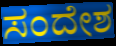
ಸಂದೇಶ